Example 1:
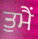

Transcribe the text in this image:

ਤੁਮੈਂ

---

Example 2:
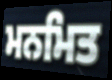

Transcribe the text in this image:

ਮਨਮਿਤ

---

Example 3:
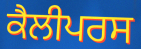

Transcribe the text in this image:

ਕੈਲੀਪਰਸ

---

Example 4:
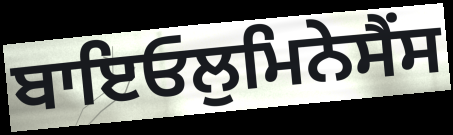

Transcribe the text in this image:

ਬਾਇਓਲੁਮਿਨੇਸੈਂਸ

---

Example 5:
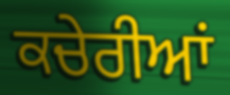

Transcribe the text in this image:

ਕਚੇਰੀਆਂ